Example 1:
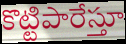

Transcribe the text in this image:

కొట్టిపారేస్తూ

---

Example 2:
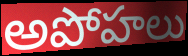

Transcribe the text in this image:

అపోహలు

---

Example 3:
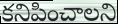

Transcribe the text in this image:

కనిపించాలని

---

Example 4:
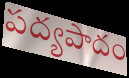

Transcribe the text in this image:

పద్యపాదం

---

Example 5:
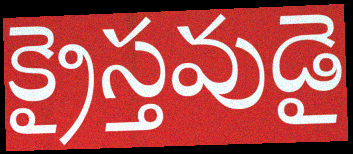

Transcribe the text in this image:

క్రైస్తవుడై